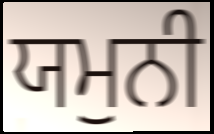
ਯਮੁਨੀ